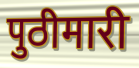
पुठीमारी